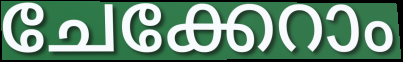
ചേക്കേറാം